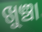
ଖୁଞ୍ଚା